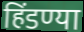
हिंडण्या